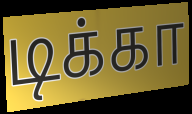
டிக்கா